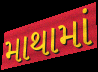
માથામાં